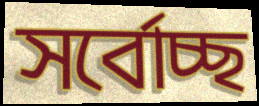
সৰ্বোচ্ছ